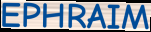
EPHRAIM